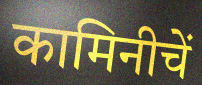
कामिनीचें